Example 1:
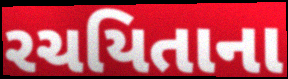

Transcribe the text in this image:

રચયિતાના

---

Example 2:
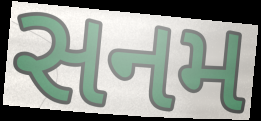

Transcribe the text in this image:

સનમ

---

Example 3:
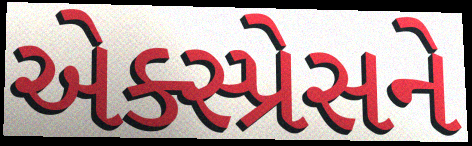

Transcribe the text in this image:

એક્સ્પ્રેસને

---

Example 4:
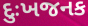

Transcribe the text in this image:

દુઃખજનક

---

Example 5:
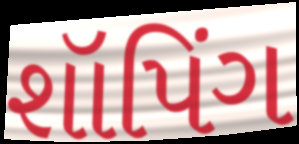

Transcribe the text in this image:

શૉપિંગ